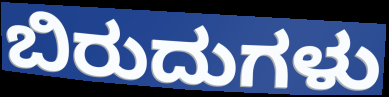
ಬಿರುದುಗಳು